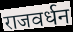
राजवर्धन